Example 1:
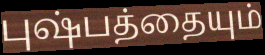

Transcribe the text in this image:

புஷ்பத்தையும்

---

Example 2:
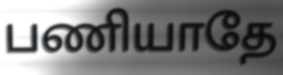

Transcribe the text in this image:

பணியாதே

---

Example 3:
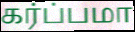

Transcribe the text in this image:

கர்ப்பமா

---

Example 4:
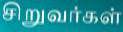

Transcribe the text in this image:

சிறுவர்கள்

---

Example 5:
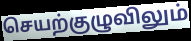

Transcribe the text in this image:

செயற்குழுவிலும்